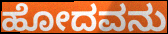
ಹೋದವನು